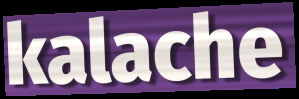
kalache